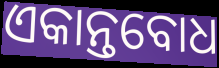
ଏକାନ୍ତବୋଧ